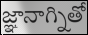
జ్ఞానాగ్నితో